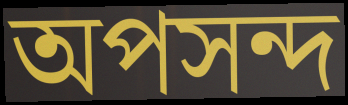
অপসন্দ